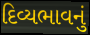
દિવ્યભાવનું